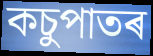
কচুপাতৰ